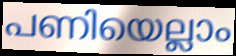
പണിയെല്ലാം